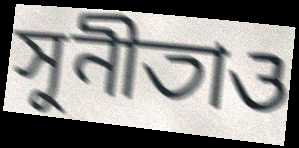
সুনীতাও